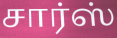
சார்ஸ்